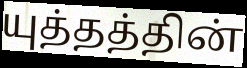
யுத்தத்தின்